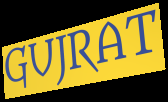
GUJRAT